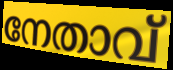
നേതാവ്